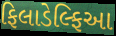
ફિલાડેલ્ફિઆ